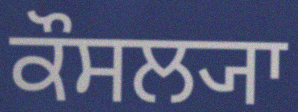
ਕੌਸਲ੍ਯਾ